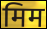
मिम